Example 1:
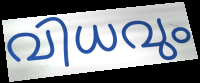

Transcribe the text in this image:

വിധവും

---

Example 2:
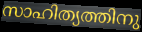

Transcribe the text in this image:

സാഹിത്യത്തിനു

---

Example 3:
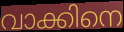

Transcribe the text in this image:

വാക്കിനെ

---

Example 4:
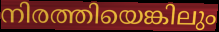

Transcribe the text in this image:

നിരത്തിയെങ്കിലും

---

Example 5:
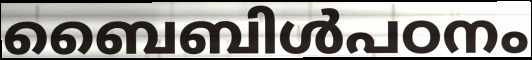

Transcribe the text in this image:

ബൈബിൾപഠനം